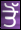
ਤੋੱ